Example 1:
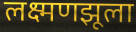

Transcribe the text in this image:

लक्ष्मणझूला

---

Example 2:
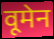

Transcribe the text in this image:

वूमेन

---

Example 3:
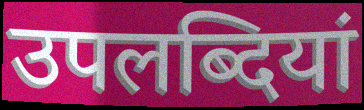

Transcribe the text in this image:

उपलब्दियां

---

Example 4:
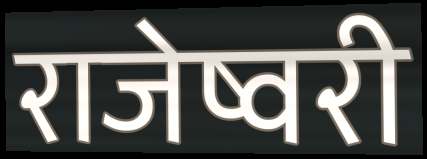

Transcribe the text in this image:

राजेष्वरी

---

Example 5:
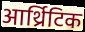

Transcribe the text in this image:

आर्थ्रिटिक